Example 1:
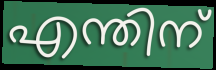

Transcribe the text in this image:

എന്തിന്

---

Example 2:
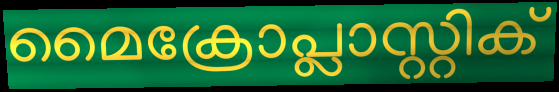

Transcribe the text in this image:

മൈക്രോപ്ലാസ്റ്റിക്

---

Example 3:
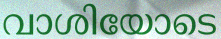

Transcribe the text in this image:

വാശിയോടെ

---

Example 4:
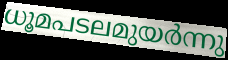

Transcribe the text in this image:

ധൂമപടലമുയർന്നു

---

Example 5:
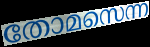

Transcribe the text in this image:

തോമസെന്ന